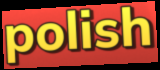
polish